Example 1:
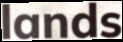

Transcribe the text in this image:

lands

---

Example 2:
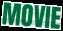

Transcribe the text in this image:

MOVIE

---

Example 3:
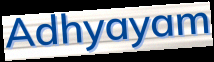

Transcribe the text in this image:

Adhyayam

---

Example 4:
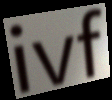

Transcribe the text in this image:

ivf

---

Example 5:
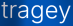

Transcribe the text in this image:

tragey